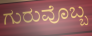
ಗುರುವೊಬ್ಬ